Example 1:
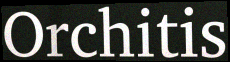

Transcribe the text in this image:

Orchitis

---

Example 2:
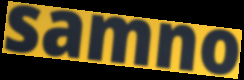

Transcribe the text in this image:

samno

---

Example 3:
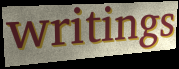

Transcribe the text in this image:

writings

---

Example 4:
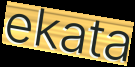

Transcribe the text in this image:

ekata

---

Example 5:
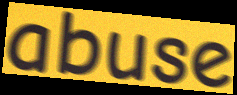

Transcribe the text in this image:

abuse